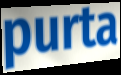
purta